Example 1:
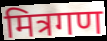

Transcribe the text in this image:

मित्रगण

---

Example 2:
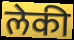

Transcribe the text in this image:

लेकी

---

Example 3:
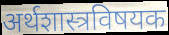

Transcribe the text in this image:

अर्थशास्त्रविषयक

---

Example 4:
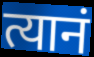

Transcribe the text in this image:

त्यानं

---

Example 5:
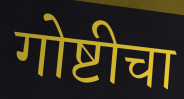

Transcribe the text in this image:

गोष्टीचा